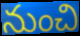
నుంచి